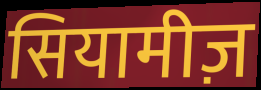
सियामीज़